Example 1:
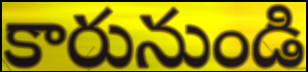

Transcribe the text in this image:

కారునుండి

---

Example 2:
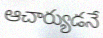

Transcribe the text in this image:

ఆచార్యుడనే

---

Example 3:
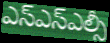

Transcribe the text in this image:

ఎస్ఎస్ఎల్సీ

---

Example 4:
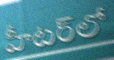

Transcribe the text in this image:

హీటర్‌లో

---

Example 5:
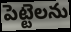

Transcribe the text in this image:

పెట్టెలను